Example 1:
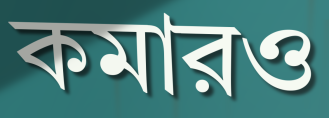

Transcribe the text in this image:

কমারও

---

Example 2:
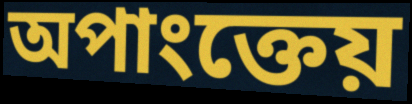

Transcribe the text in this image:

অপাংক্তেয়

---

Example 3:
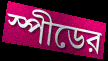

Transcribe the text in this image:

স্পীডের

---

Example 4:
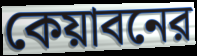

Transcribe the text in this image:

কেয়াবনের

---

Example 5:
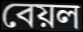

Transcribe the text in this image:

বেয়ল